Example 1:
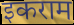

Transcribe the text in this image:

इकराम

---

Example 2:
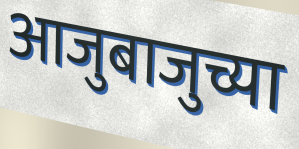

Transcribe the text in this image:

आजुबाजुच्या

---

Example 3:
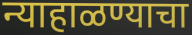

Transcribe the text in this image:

न्याहाळण्याचा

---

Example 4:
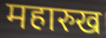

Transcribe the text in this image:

महारुख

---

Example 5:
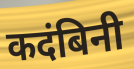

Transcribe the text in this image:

कदंबिनी